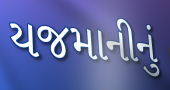
યજમાનીનું